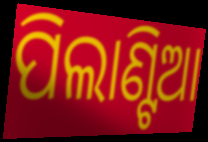
ପିଲାଣ୍ଟିଆ